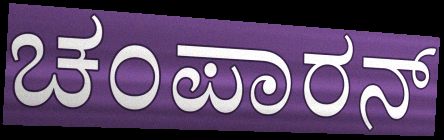
ಚಂಪಾರನ್